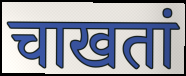
चाखतां